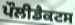
ਪੌਲੀਡੈਕਟਸ